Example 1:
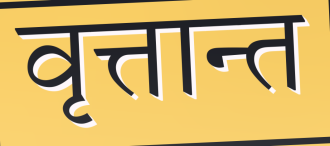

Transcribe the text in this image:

वृत्तान्त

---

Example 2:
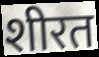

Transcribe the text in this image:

शीरत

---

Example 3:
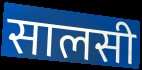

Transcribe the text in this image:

सालसी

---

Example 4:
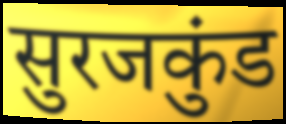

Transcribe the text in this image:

सुरजकुंड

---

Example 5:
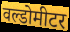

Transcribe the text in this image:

वल्डोमीटर